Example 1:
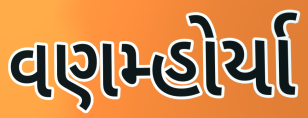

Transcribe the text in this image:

વણમ્હોર્યા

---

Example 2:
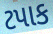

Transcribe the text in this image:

ટપાક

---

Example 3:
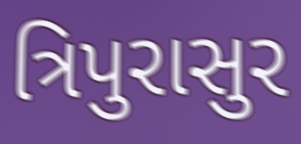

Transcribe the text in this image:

ત્રિપુરાસુર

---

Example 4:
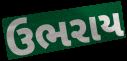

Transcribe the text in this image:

ઉભરાય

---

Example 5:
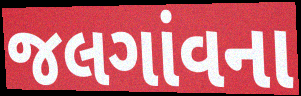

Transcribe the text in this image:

જલગાંવના